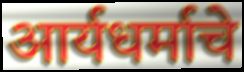
आर्यधर्माचे